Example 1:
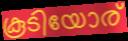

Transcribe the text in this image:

കൂടിയോര്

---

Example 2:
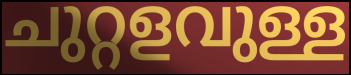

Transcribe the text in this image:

ചുറ്റളവുള്ള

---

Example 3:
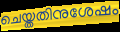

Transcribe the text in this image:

ചെയ്തതിനുശേഷം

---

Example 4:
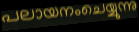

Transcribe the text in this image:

പലായനംചെയ്യുന്നു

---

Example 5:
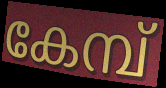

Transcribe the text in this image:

കേമ്പ്